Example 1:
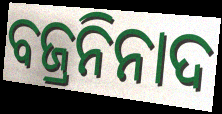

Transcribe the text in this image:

ବଜ୍ରନିନାଦ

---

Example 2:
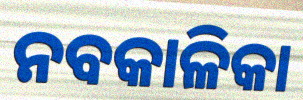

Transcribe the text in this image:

ନବକାଳିକା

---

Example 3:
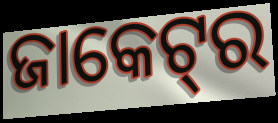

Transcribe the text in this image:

ଜାକେଟ୍‌ର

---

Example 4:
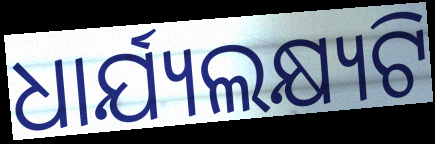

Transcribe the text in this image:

ଧାର୍ଯ୍ୟଲକ୍ଷ୍ୟଟି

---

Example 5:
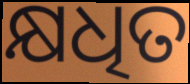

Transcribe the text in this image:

କ୍ଷଧିତ